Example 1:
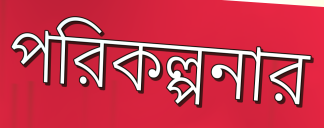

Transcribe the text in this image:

পরিকল্পনার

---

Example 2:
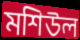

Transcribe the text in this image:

মশিউল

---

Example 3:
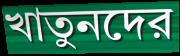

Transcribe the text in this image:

খাতুনদের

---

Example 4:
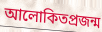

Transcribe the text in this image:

আলোকিতপ্রজন্ম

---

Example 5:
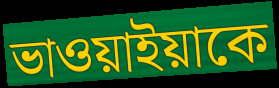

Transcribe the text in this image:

ভাওয়াইয়াকে